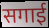
सगाई